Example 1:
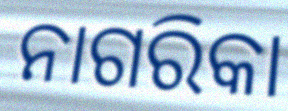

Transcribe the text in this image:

ନାଗରିକା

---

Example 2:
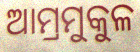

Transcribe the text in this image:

ଆମ୍ରମୁକୁଳ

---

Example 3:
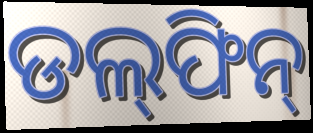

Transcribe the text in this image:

ଡଲ୍‍ଫିନ୍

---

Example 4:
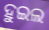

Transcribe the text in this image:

ହୁଇଲ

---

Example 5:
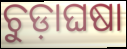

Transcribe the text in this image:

ଚୁଡ଼ାଘଷା